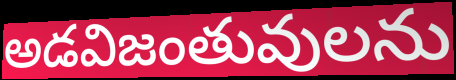
అడవిజంతువులను